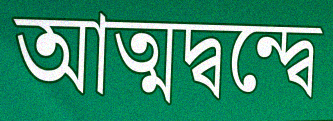
আত্মদ্বন্দ্বে